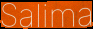
Salima